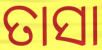
ତାସା